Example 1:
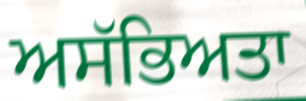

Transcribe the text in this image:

ਅਸੱਭਿਅਤਾ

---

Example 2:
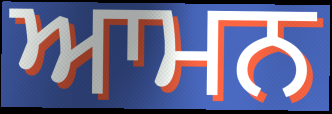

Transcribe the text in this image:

ਆਮਨ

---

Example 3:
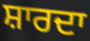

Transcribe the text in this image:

ਸ਼ਾਰਦਾ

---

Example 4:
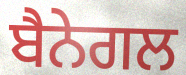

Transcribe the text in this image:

ਬੈਨੇਗਲ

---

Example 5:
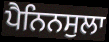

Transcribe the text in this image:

ਪੈਨਿਨਸੁਲਾ